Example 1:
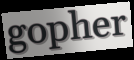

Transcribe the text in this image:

gopher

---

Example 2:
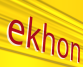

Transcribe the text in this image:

ekhon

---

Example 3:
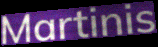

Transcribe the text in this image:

Martinis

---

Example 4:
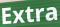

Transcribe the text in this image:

Extra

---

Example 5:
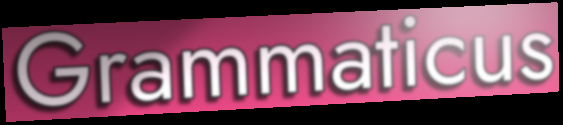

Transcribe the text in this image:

Grammaticus